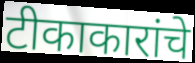
टीकाकारांचे